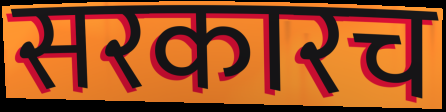
सरकारच